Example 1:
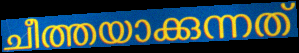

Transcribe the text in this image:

ചീത്തയാക്കുന്നത്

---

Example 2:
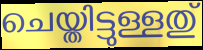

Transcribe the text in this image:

ചെയ്തിട്ടുള്ളതു്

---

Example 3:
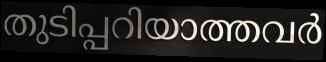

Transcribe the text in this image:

തുടിപ്പറിയാത്തവർ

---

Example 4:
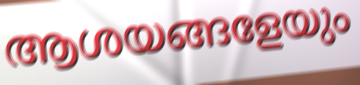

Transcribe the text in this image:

ആശയങ്ങളേയും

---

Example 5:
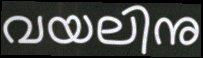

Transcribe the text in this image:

വയലിനു